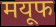
मयूफ